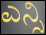
ಎನ್ಸಿ